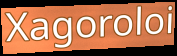
Xagoroloi